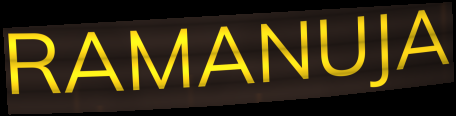
RAMANUJA